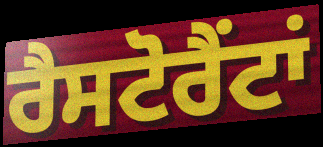
ਰੈਸਟੋਰੈਂਟਾਂ